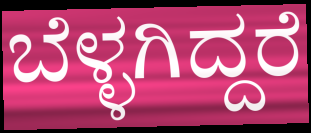
ಬೆಳ್ಳಗಿದ್ದರೆ